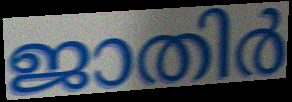
ജാതിർ